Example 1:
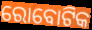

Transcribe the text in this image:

ରୋବୋଟିକ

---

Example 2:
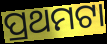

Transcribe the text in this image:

ପ୍ରଥମଟା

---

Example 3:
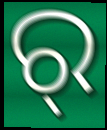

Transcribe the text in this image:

ର୍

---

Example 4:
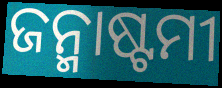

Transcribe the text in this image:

ଜନ୍ମାଷ୍ଟମୀ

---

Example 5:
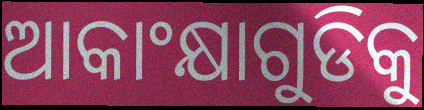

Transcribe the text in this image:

ଆକାଂକ୍ଷାଗୁଡିକୁ